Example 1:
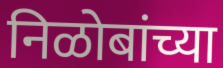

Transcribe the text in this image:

निळोबांच्या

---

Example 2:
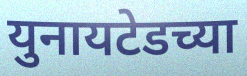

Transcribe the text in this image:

युनायटेडच्या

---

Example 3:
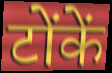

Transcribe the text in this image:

टोंकें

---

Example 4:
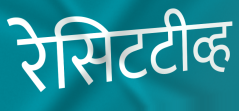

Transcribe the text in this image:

रेसिटटीव्ह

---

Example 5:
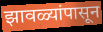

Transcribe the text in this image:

झावळ्यांपासून